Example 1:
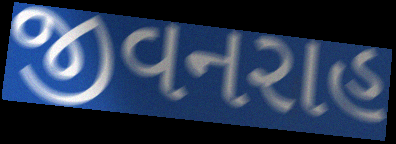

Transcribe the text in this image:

જીવનરાહ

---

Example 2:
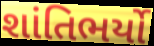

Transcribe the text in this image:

શાંતિભર્યો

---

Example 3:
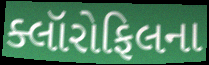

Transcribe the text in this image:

ક્લૉરોફિલના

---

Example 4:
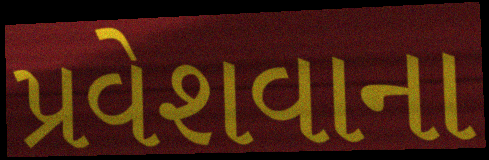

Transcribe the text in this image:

પ્રવેશવાના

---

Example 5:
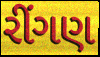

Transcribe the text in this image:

રીંગણ